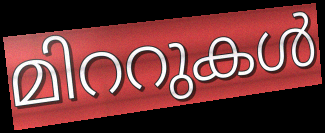
മിററുകൾ